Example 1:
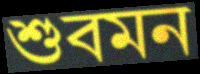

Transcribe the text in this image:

শুবমন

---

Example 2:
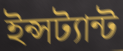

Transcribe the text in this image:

ইন্সট্যান্ট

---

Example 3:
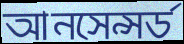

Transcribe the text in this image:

আনসেন্সর্ড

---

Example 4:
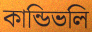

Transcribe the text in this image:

কান্ডিভলি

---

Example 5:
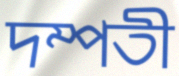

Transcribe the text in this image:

দম্পতী